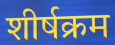
शीर्षक्रम